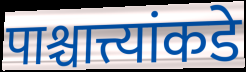
पाश्चात्त्यांकडे